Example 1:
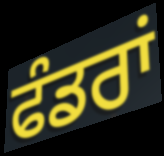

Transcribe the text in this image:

ਫੰਡਰਾਂ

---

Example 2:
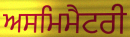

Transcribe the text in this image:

ਅਸਮਿਮੈਟਰੀ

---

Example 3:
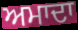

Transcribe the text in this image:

ਅਮਾਦਾ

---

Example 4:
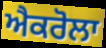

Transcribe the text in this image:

ਐਕਰੋਲਾ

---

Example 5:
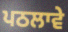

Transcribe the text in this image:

ਪਠਲਾਵੇ